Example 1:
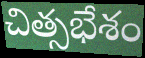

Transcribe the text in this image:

చిత్సభేశం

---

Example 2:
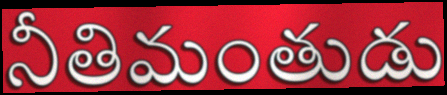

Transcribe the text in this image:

నీతిమంతుడు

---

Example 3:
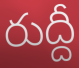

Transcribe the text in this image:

రుద్దీ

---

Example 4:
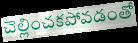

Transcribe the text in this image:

చెల్లించకపోవడంతో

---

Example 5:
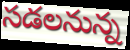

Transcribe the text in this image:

సడలనున్న